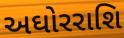
અઘોરરાશિ